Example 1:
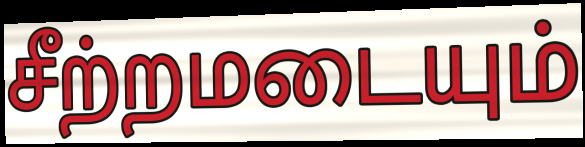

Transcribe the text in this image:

சீற்றமடையும்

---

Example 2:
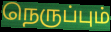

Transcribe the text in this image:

நெருப்பும்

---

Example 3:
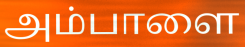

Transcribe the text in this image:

அம்பாளை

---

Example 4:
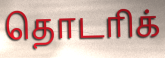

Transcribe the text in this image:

தொடரிக்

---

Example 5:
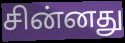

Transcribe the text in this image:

சின்னது